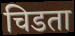
चिडता